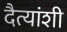
दैत्यांशी